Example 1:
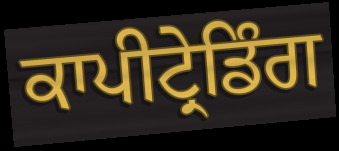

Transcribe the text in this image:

ਕਾਪੀਟ੍ਰੇਡਿੰਗ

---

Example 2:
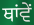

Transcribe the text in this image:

ਥਾਂਵੇਂ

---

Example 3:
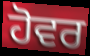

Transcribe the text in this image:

ਹੋਵਰ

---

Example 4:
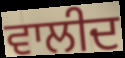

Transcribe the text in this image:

ਵਾਲੀਦ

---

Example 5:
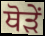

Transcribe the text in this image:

ਥੋੜੇਂ